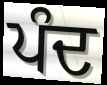
ਪੰਦ